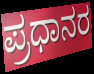
ಪ್ರಧಾನರ